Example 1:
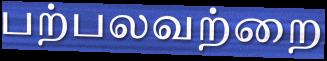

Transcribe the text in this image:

பற்பலவற்றை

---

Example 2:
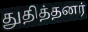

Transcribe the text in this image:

துதித்தனர்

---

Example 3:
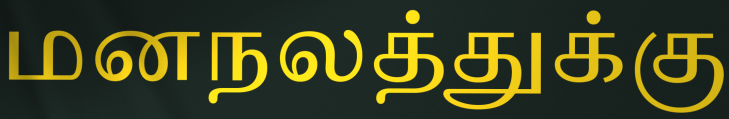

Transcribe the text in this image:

மனநலத்துக்கு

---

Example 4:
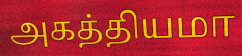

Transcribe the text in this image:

அகத்தியமா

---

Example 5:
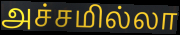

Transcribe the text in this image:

அச்சமில்லா